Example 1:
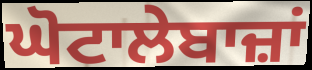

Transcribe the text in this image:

ਘੋਟਾਲੇਬਾਜ਼ਾਂ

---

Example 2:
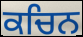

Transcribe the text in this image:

ਕਚਿਨ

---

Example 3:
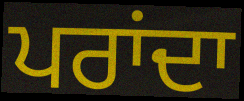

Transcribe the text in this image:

ਪਰਾਂਦਾ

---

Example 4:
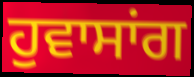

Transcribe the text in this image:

ਹੁਵਾਸਾਂਗ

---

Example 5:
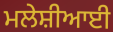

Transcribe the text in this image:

ਮਲੇਸ਼ੀਆਈ